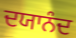
ਦਯਾਨੰਦ